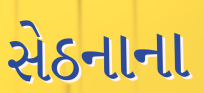
સેઠનાના